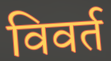
विवर्त